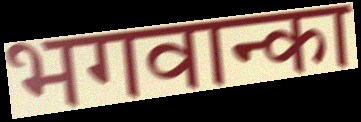
भगवान्का